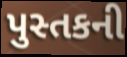
પુસ્તકની